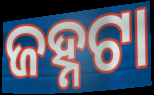
ଜହ୍ନଟା